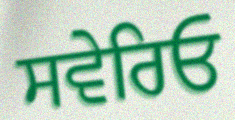
ਸਵੇਰਿਓ